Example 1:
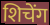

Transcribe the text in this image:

शिचेंग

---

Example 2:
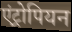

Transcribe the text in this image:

एंट्रोपियन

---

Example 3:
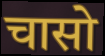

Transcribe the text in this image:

चासो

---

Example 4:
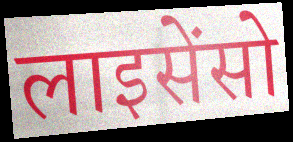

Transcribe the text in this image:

लाइसेंसो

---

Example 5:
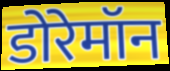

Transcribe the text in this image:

डोरेमॉन